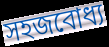
সহজবোধ্য